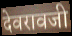
देवरावजी